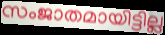
സംജാതമായിട്ടില്ല